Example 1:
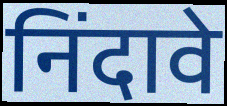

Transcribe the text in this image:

निंदावे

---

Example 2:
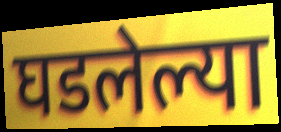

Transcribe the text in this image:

घडलेल्या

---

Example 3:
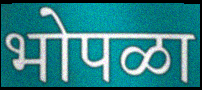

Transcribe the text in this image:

भोपळा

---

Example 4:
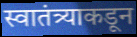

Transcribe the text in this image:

स्वातंत्र्याकडून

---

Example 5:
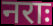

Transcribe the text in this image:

नराः